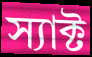
স্যাক্ট